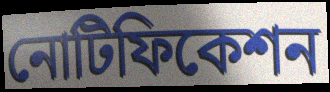
নোটিফিকেশন